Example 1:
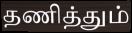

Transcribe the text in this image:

தணித்தும்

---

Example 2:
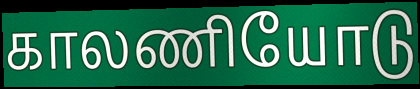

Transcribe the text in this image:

காலணியோடு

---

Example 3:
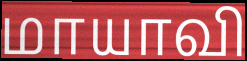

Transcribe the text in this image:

மாயாவி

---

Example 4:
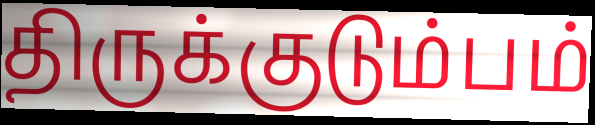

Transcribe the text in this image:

திருக்குடும்பம்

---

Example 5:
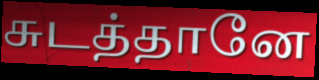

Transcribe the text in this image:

சுடத்தானே